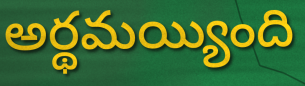
అర్థమయ్యింది